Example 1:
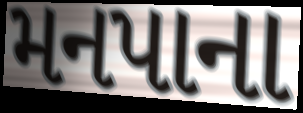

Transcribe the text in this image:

મનપાના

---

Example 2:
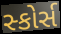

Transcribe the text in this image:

સ્કોર્સ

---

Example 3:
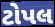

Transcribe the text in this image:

ટોપલ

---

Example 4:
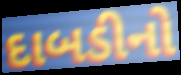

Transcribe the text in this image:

દાબડીનો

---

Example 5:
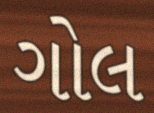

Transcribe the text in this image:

ગોલ